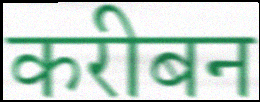
करीबन